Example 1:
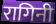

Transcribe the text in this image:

रागिनी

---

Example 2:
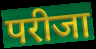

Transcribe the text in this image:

परीजा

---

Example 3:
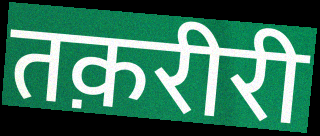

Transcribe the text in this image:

तक़रीरी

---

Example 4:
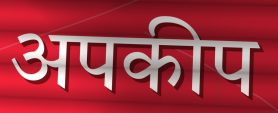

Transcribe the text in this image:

अपकीप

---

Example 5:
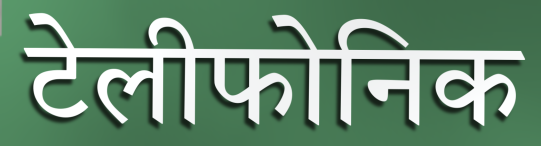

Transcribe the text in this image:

टेलीफोनिक